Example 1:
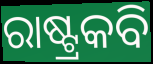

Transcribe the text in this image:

ରାଷ୍ଟ୍ରକବି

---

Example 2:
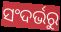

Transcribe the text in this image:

ସଂଦର୍ଭରୁ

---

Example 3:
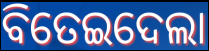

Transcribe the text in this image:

ବିତେଇଦେଲା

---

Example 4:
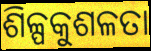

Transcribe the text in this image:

ଶିଳ୍ପକୁଶଳତା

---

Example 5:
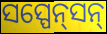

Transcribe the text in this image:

ସସ୍ପେନ୍‌ସନ୍